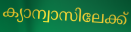
ക്യാന്വാസിലേക്ക്